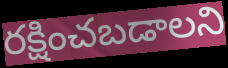
రక్షించబడాలని